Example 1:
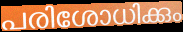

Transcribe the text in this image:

പരിശോധിക്കും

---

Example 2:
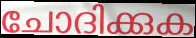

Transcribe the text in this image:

ചോദിക്കുക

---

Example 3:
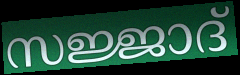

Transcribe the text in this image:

സജ്ജാദ്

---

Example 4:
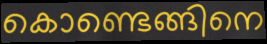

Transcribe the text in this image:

കൊണ്ടെങ്ങിനെ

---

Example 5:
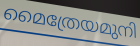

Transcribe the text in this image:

മൈത്രേയമുനി